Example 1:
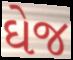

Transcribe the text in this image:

ઘેજ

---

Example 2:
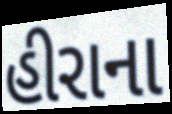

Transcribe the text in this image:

હીરાના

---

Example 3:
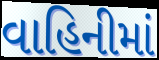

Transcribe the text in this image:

વાહિનીમાં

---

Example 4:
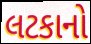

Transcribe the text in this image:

લટકાનો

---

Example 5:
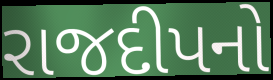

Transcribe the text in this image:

રાજદીપનો